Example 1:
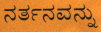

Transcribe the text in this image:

ನರ್ತನವನ್ನು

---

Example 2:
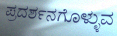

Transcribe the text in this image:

ಪ್ರದರ್ಶನಗೊಳ್ಳುವ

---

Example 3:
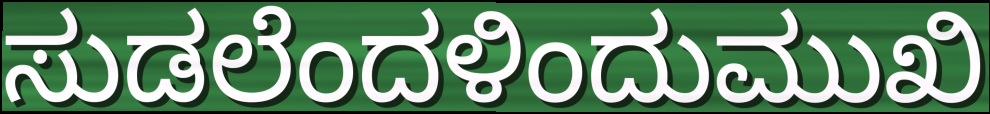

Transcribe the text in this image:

ಸುಡಲೆಂದಳಿಂದುಮುಖಿ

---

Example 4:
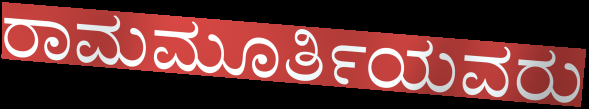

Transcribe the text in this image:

ರಾಮಮೂರ್ತಿಯವರು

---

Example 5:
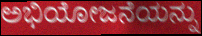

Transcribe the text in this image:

ಅಭಿಯೋಜನೆಯನ್ನು